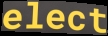
elect